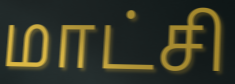
மாட்சி